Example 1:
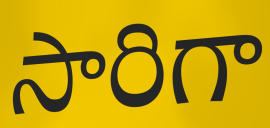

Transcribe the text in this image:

సారిగా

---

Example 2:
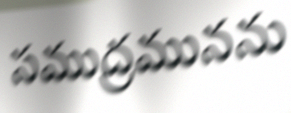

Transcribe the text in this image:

సముద్రమునను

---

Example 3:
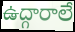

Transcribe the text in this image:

ఉద్గారాలే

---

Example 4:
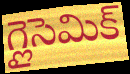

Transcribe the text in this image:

గ్లైసెమిక్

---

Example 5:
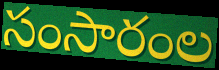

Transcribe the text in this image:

సంసారంల